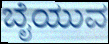
ಬೈಯುವ